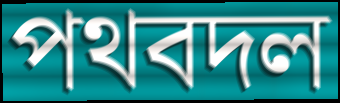
পথবদল